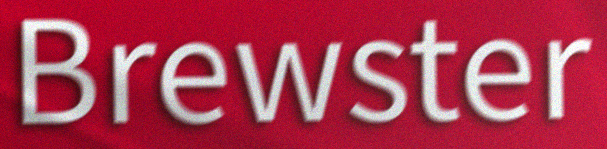
Brewster